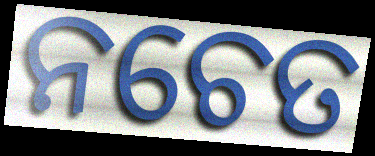
ନଚେତ